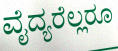
ವೈದ್ಯರೆಲ್ಲರೂ